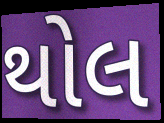
થોલ